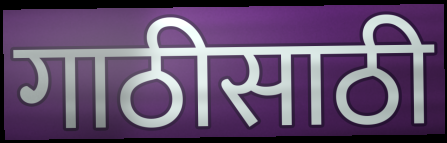
गाठीसाठी